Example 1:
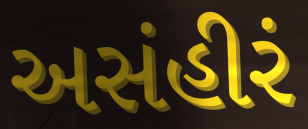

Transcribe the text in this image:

અસંહીરં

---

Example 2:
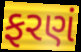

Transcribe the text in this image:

ફરણં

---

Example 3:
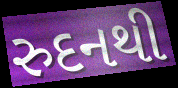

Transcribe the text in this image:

રુદનથી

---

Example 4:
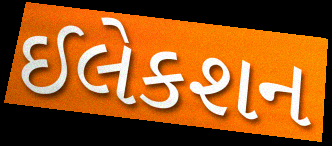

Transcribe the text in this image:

ઈલેકશન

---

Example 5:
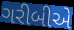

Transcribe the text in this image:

ગરીબીએ